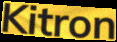
Kitron